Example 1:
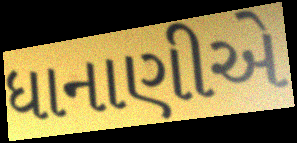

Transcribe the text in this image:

ધાનાણીએ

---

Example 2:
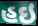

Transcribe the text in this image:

હઇ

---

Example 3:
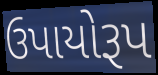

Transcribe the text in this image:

ઉપાયોરૂપ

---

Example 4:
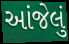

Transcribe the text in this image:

આંજેલું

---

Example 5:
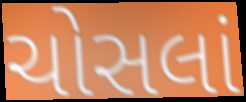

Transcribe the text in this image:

ચોસલાં